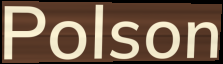
Polson